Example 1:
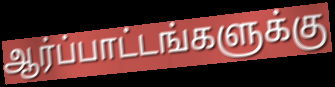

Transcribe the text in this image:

ஆர்ப்பாட்டங்களுக்கு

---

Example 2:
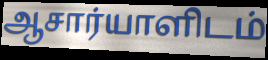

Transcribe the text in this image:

ஆசார்யாளிடம்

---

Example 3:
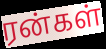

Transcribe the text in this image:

ரன்கள்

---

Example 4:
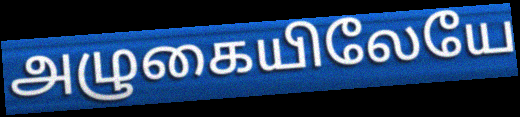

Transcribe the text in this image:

அழுகையிலேயே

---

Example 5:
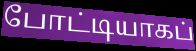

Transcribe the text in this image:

போட்டியாகப்